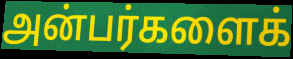
அன்பர்களைக்